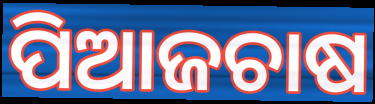
ପିଆଜଚାଷ